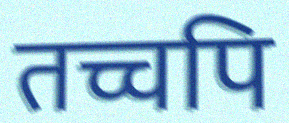
तच्चपि